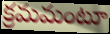
క్రమమంటూ